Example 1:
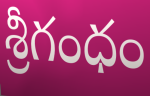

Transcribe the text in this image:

శ్రీగంధం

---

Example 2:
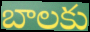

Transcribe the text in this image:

బాలకు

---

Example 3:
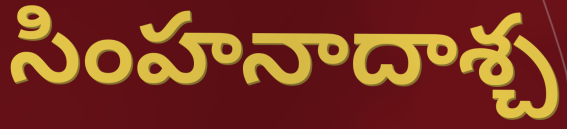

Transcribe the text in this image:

సింహనాదాశ్చ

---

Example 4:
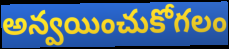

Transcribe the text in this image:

అన్వయించుకోగలం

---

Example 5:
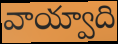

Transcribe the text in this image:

వాయ్వాది